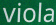
viola